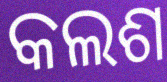
କଲଶ